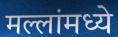
मल्लांमध्ये